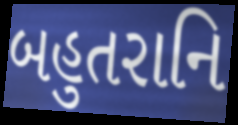
બહુતરાનિ